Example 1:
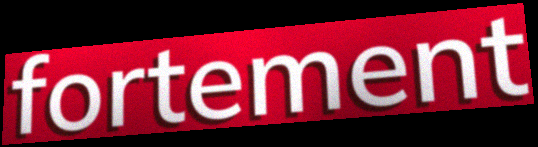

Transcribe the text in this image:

fortement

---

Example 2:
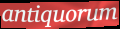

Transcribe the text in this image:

antiquorum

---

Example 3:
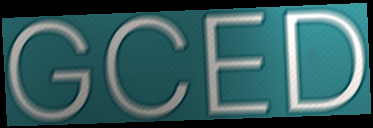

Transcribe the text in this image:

GCED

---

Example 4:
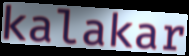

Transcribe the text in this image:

kalakar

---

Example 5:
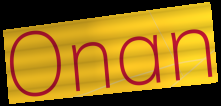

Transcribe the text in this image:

Onan